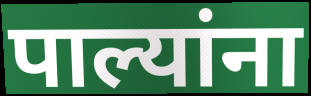
पाल्यांना